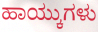
ಹಾಯ್ಕುಗಳು